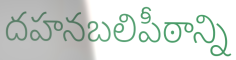
దహనబలిపీఠాన్ని